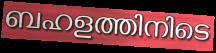
ബഹളത്തിനിടെ